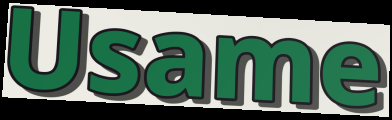
Usame